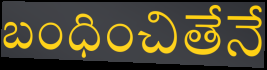
బంధించితేనే